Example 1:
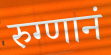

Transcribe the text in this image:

रुग्णानं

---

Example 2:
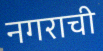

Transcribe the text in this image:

नगराची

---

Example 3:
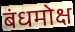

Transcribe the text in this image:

बंधमोक्ष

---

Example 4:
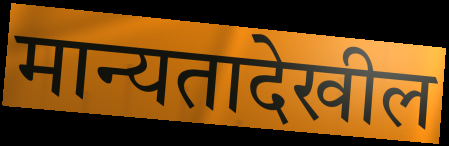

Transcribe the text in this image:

मान्यतादेखील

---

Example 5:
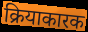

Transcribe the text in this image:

क्रियाकारक